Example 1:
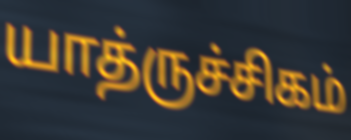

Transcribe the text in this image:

யாத்ருச்சிகம்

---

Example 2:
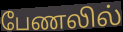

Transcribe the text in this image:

பேணலில்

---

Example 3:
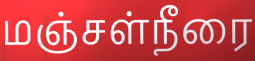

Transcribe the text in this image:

மஞ்சள்நீரை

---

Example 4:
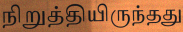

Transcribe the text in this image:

நிறுத்தியிருந்தது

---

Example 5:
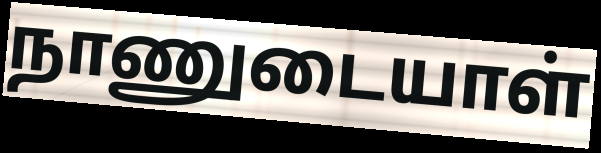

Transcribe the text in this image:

நாணுடையாள்